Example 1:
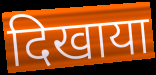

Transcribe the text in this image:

दिखाया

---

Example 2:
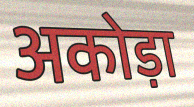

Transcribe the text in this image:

अकोड़ा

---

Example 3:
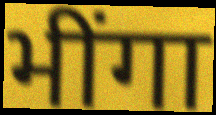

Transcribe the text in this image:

भींगा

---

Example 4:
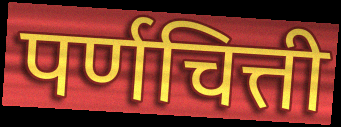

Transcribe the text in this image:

पर्णचित्ती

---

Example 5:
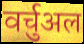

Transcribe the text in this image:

वर्चुअल